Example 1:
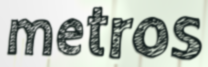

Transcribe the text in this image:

metros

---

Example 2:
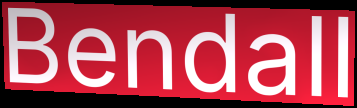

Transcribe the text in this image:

Bendall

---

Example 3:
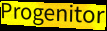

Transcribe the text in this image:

Progenitor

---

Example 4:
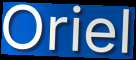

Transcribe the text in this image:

Oriel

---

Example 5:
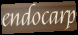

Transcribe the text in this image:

endocarp